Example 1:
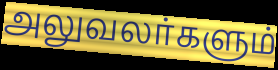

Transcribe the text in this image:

அலுவலர்களும்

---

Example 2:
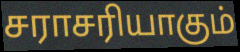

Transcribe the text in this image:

சராசரியாகும்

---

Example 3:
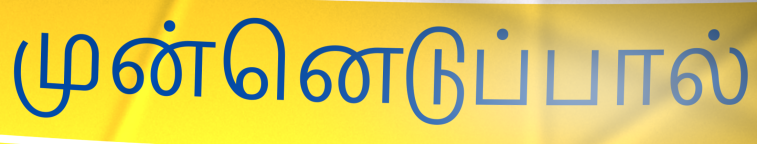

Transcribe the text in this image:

முன்னெடுப்பால்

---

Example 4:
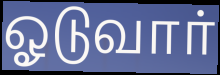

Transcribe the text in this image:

ஓடுவார்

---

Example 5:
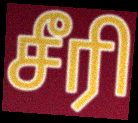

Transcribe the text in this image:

சீரி